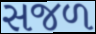
સજળ